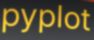
pyplot